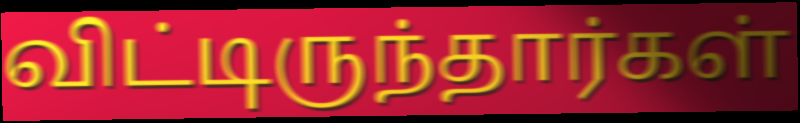
விட்டிருந்தார்கள்